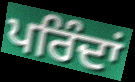
ਪਰਿੰਦਾਂ